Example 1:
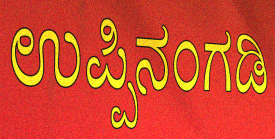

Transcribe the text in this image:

ಉಪ್ಪಿನಂಗಡಿ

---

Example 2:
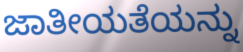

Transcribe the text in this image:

ಜಾತೀಯತೆಯನ್ನು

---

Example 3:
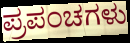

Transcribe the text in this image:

ಪ್ರಪಂಚಗಳು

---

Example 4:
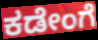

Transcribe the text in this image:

ಕಡೇಂಗೆ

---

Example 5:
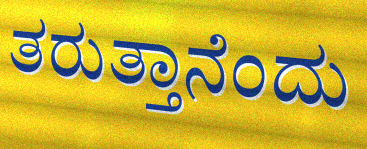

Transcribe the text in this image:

ತರುತ್ತಾನೆಂದು